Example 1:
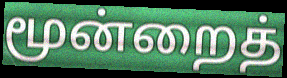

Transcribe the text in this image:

மூன்றைத்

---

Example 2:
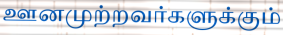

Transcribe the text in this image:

ஊனமுற்றவர்களுக்கும்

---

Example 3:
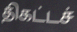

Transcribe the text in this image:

திகட்டச்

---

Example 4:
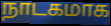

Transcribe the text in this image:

நாடகமாக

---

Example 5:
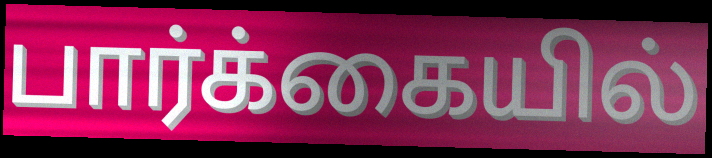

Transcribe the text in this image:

பார்க்கையில்